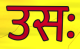
उसः